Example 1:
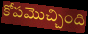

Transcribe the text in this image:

కోపమొచ్చింది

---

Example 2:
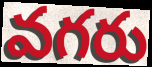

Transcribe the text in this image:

వగరు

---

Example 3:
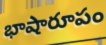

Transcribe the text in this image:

భాషారూపం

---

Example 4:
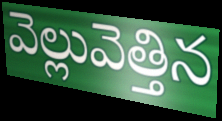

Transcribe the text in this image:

వెల్లువెత్తిన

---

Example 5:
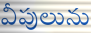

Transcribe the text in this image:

వీపులును